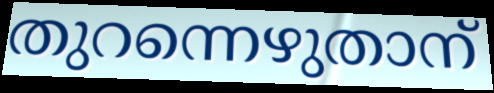
തുറന്നെഴുതാന്